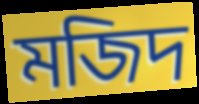
মজিদ